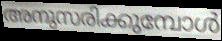
അനുസരിക്കുമ്പോൾ